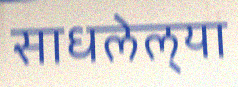
साधलेल्या